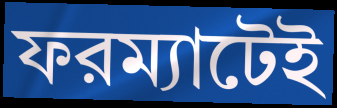
ফরম্যাটেই